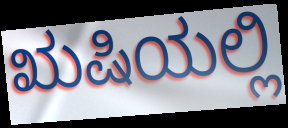
ಋಷಿಯಲ್ಲಿ